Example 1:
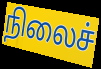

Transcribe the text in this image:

நிலைச்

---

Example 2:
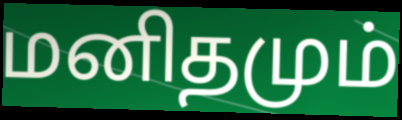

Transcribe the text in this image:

மனிதமும்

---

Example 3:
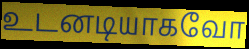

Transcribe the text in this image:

உடனடியாகவோ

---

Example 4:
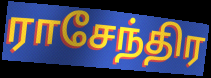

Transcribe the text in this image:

ராசேந்திர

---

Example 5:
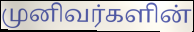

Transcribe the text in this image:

முனிவர்களின்